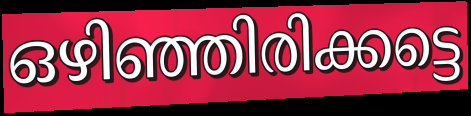
ഒഴിഞ്ഞിരിക്കട്ടെ